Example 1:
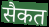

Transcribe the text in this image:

सैकत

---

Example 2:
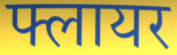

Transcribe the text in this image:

फ्लायर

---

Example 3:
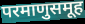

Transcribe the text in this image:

परमाणुसमूह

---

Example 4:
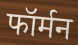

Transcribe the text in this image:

फॉर्मन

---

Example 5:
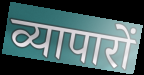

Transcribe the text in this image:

व्यापारों